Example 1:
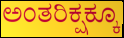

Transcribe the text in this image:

ಅಂತರಿಕ್ಷಕ್ಕೂ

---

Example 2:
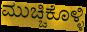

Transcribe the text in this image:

ಮುಚ್ಚಿಕೊಳ್ಳಿ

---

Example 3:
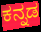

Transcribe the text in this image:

ಕನ್ನಡ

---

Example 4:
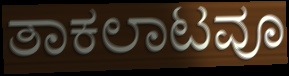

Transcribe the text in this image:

ತಾಕಲಾಟವೂ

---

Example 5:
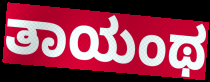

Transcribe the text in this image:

ತಾಯಂಥ